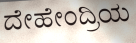
ದೇಹೇಂದ್ರಿಯ